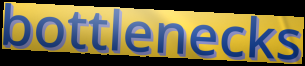
bottlenecks